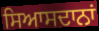
ਸਿਆਸਦਾਨਾਂ